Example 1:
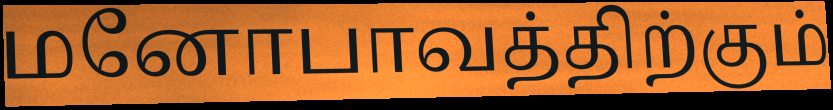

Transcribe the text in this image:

மனோபாவத்திற்கும்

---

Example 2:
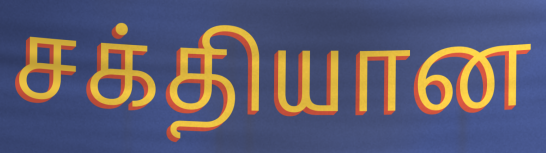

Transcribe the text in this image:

சக்தியான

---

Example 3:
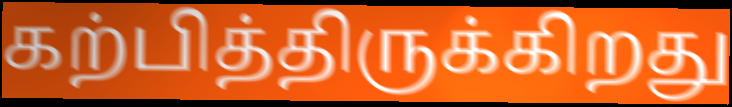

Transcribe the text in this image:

கற்பித்திருக்கிறது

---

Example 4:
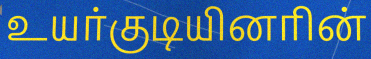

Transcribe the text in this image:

உயர்குடியினரின்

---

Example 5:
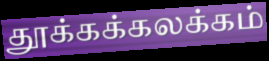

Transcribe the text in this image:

தூக்கக்கலக்கம்